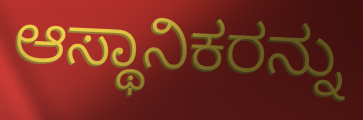
ಆಸ್ಥಾನಿಕರನ್ನು